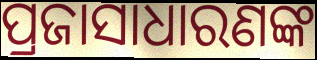
ପ୍ରଜାସାଧାରଣଙ୍କ